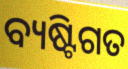
ବ୍ୟଷ୍ଟିଗତ